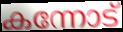
കന്നോട്